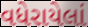
વધેરાયેલાં